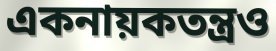
একনায়কতন্ত্রও